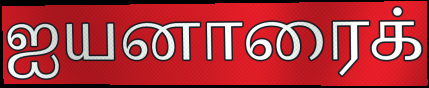
ஐயனாரைக்